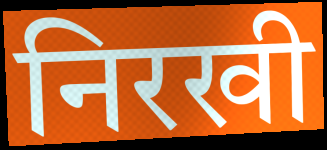
निरखी